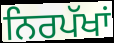
ਨਿਰਪੱਖਾਂ